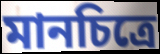
মানচিত্রে